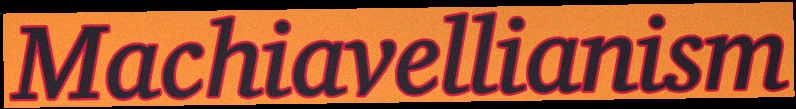
Machiavellianism